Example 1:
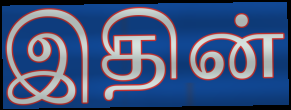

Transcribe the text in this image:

இதின்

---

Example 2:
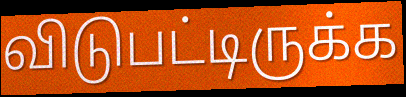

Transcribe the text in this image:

விடுபட்டிருக்க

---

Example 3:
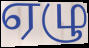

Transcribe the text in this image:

ஏழு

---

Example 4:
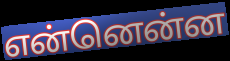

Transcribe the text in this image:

என்னென்ன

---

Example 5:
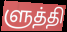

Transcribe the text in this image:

ளுத்தி